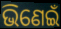
ଭିଣେଇଁ